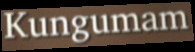
Kungumam